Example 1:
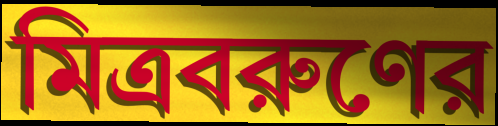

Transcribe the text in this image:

মিত্রবরুণের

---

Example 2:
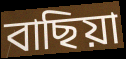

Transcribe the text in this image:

বাছিয়া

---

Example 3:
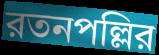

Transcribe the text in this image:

রতনপল্লির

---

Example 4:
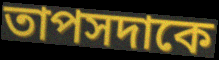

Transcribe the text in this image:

তাপসদাকে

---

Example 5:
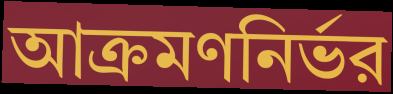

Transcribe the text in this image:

আক্রমণনির্ভর